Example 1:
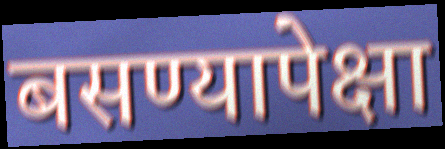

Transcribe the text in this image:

बसण्यापेक्षा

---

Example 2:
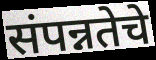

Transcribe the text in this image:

संपन्नतेचे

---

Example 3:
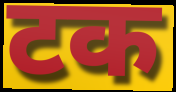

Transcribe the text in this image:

टक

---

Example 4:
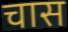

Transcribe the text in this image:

चास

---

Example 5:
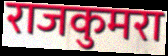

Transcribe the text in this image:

राजकुमरा